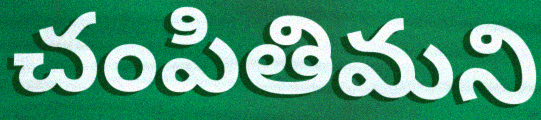
చంపితిమని